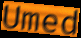
Umed